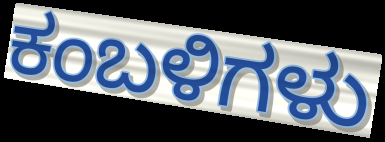
ಕಂಬಳಿಗಳು